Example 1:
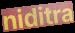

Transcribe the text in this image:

niditra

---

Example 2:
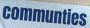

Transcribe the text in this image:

communties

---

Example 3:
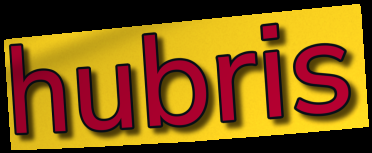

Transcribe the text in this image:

hubris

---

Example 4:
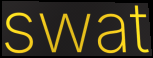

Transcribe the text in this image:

swat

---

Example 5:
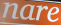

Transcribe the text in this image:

nare